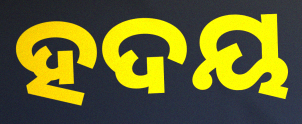
ହଦୟ